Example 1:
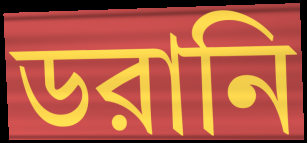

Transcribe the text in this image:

ডরানি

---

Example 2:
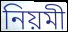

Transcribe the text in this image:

নিয়মী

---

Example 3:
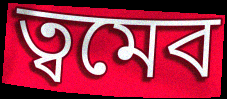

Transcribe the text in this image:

ত্বমেব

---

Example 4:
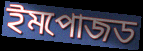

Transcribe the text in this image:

ইমপোজড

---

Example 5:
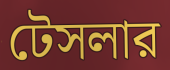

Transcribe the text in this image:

টেসলার